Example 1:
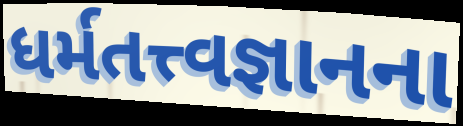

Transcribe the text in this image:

ધર્મતત્ત્વજ્ઞાનના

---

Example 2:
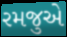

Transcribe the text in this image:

રમજુએ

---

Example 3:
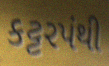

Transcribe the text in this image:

કટ્ટરપંથી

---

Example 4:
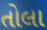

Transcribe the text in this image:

તોલા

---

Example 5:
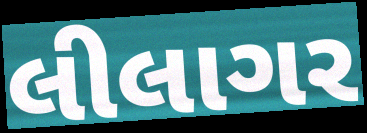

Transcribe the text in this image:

લીલાગર